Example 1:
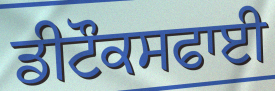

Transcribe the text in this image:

ਡੀਟੌਕਸਫਾਈ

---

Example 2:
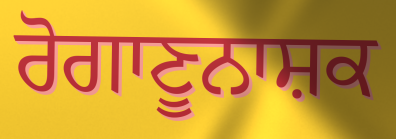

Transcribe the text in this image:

ਰੋਗਾਣੂਨਾਸ਼ਕ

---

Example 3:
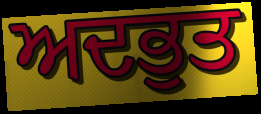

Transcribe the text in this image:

ਅਦਭੁਤ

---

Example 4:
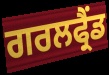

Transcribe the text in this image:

ਗਰਲਫ੍ਰੈਂਡ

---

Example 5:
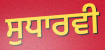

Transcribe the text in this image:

ਸੁਧਾਰਵੀ